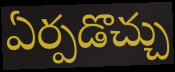
ఏర్పడొచ్చు